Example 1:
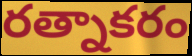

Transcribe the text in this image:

రత్నాకరం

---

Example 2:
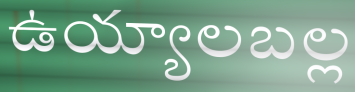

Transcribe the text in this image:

ఉయ్యాలబల్ల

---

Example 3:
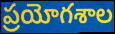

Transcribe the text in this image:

ప్రయోగశాల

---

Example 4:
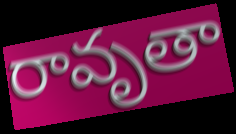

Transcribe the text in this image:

రావృతా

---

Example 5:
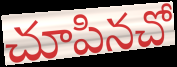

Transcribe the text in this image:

చూపినచో